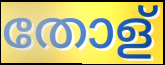
തോള്